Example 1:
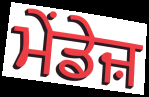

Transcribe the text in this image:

ਮੇਂਡੇਜ਼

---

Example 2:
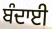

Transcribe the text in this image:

ਬੰਦਾਈ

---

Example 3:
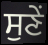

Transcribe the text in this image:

ਸੁਣੇਂ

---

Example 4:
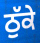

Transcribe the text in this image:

ਠੁੱਕੇ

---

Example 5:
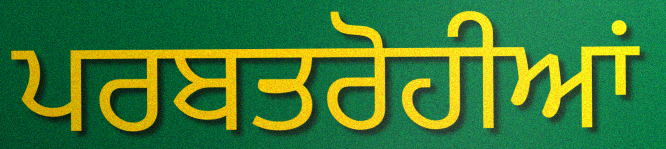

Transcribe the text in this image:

ਪਰਬਤਰੋਹੀਆਂ